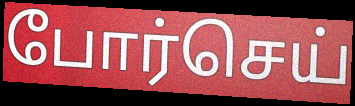
போர்செய்